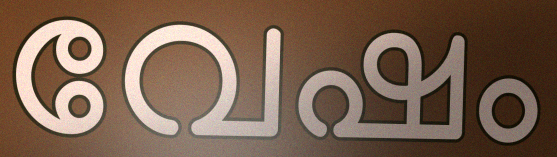
വേഷം